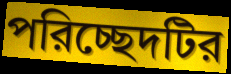
পরিচ্ছেদটির